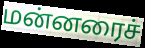
மன்னரைச்